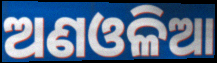
ଅଣଓଳିଆ